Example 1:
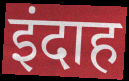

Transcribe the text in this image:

इंदाह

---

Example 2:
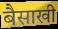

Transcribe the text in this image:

बैसाखी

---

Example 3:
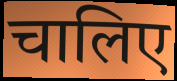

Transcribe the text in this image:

चालिए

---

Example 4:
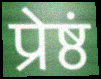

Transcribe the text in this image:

प्रेष्ठं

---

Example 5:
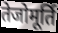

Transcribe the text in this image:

तेजोमूर्ति